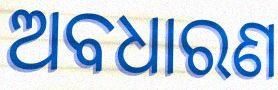
ଅବଧାରଣ